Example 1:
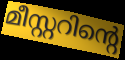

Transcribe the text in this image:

മീസ്റ്ററിന്റെ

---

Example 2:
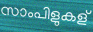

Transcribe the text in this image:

സാംപിളുകള്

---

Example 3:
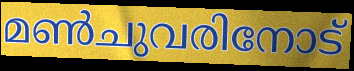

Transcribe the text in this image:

മൺചുവരിനോട്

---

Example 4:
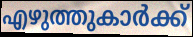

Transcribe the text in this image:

എഴുത്തുകാർക്ക്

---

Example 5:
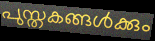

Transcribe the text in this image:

പുസ്തകങ്ങൾക്കും